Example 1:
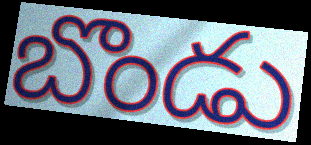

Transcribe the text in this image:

బొండు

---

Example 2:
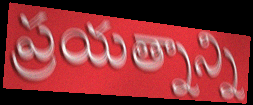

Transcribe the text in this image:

ప్రయత్నాన్ని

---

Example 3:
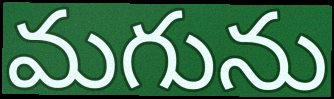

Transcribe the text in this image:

మగును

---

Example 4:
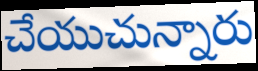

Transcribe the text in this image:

చేయుచున్నారు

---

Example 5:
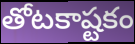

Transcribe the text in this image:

తోటకాష్టకం